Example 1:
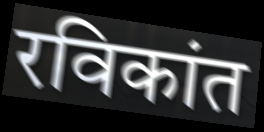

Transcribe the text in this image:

रविकांत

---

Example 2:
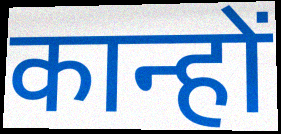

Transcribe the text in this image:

कान्हों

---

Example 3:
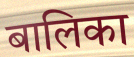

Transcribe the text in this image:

बालिका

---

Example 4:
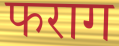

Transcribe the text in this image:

फराग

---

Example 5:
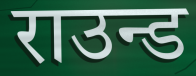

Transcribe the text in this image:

राउन्ड